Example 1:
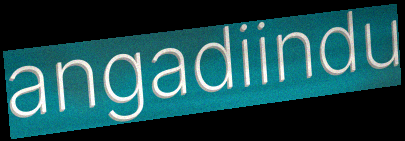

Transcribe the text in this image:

angadiindu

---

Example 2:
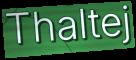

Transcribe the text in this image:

Thaltej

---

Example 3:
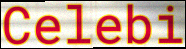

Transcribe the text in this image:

Celebi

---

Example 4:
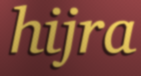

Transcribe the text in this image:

hijra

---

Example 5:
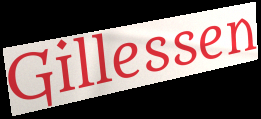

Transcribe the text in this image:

Gillessen